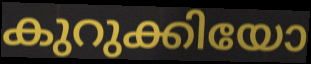
കുറുക്കിയോ